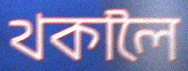
থকালৈ